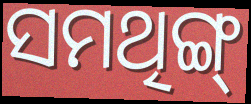
ସମଥିଙ୍ଗ୍